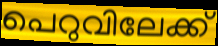
പെറുവിലേക്ക്